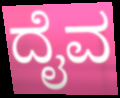
ದೈವ